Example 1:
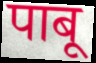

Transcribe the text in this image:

पाबू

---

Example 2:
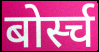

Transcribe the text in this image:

बोर्स्च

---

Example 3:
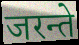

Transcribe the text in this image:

जरन्ते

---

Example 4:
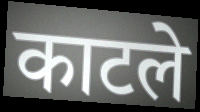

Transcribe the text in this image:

काटले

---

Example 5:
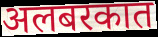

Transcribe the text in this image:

अलबरकात